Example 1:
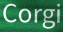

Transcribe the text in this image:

Corgi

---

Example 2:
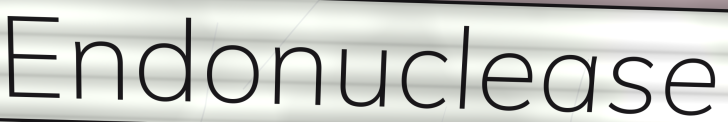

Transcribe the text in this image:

Endonuclease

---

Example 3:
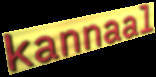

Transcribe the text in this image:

kannaal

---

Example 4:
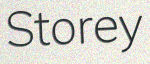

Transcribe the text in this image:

Storey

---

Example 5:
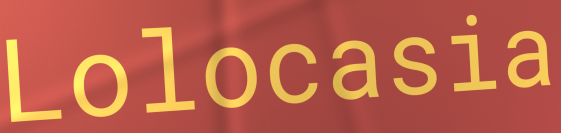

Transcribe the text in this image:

Lolocasia